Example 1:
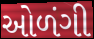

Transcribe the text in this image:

ઓળંગી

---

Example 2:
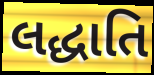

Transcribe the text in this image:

લદ્ધાતિ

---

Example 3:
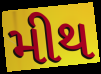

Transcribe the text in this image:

મીથ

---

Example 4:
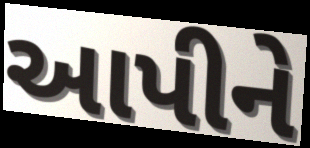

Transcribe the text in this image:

આપીને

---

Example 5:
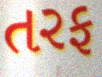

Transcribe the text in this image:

તરફ